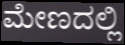
ಮೇಣದಲ್ಲಿ